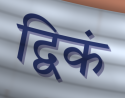
द्विकं